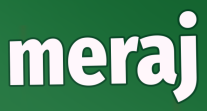
meraj